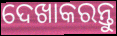
ଦେଖାକରନ୍ତୁ